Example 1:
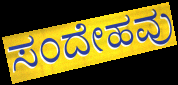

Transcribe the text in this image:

ಸಂದೇಹವು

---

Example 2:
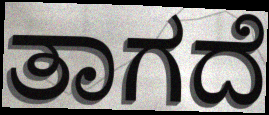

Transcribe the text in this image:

ತಾಗದೆ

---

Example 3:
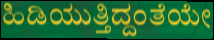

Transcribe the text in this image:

ಹಿಡಿಯುತ್ತಿದ್ದಂತೆಯೇ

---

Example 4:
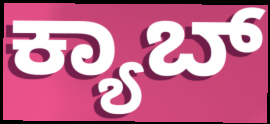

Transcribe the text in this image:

ಕ್ಯಾಬ್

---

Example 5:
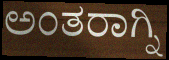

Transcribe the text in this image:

ಅಂತರಾಗ್ನಿ